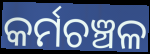
କର୍ମଚଞ୍ଚଳ